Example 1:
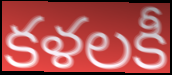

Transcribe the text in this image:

కళలకీ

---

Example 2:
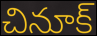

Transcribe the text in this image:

చినూక్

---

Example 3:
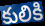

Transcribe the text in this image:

కులికి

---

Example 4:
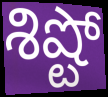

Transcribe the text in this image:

శిష్టో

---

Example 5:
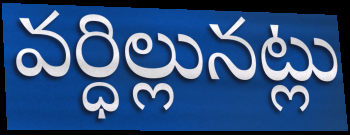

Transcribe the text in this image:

వర్ధిల్లునట్లు